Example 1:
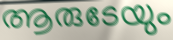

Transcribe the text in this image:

ആരുടേയും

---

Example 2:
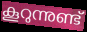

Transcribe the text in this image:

കൂറുന്നുണ്ട്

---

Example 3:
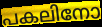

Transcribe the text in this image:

പകലിനോ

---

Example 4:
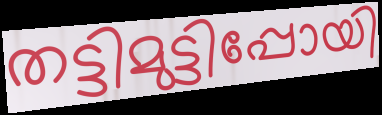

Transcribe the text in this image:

തട്ടിമുട്ടിപ്പോയി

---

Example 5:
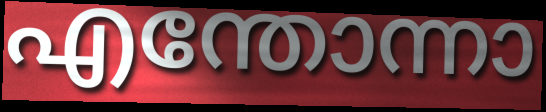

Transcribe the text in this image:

എന്തോന്നാ